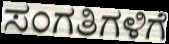
ಸಂಗತಿಗಳಿಗೆ